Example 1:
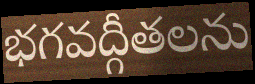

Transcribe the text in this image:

భగవద్గీతలను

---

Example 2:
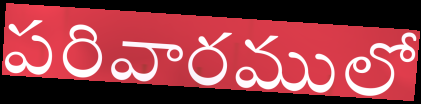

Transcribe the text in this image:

పరివారములో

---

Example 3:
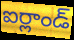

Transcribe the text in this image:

ఐర్లాండ్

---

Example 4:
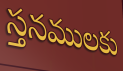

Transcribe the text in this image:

స్తనములకు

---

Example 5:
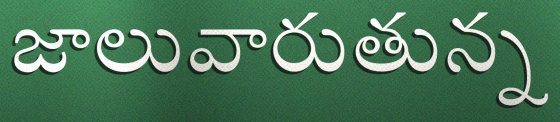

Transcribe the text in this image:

జాలువారుతున్న